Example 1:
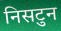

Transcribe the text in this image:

निसटुन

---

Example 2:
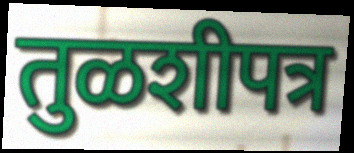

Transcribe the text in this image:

तुळशीपत्र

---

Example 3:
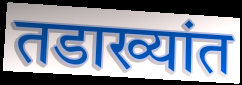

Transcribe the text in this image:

तडाख्यांत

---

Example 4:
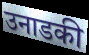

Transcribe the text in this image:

उनाडकी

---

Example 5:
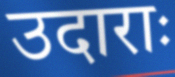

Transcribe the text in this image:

उदाराः